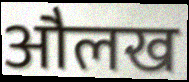
औलख